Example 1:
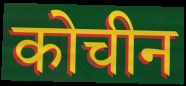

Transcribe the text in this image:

कोचीन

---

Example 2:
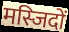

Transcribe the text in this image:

मस्‍जिदों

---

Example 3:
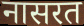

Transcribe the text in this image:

नासरत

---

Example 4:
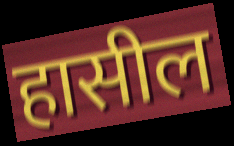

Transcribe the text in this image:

हासील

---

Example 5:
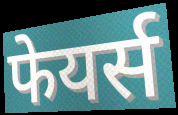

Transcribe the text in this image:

फेयर्स